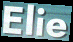
Elie